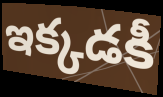
ఇక్కడకీ